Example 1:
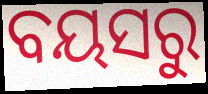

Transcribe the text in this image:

ବୟସରୁ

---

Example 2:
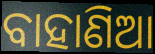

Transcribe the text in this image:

ବାହାଣିଆ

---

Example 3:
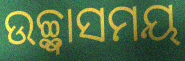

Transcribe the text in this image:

ଉଚ୍ଛ୍ୱାସମୟ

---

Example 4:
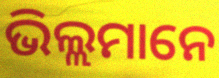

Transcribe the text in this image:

ଭିଲ୍ଲମାନେ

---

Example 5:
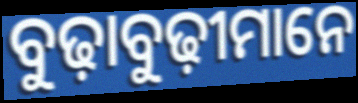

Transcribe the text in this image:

ବୁଢ଼ାବୁଢ଼ୀମାନେ